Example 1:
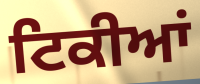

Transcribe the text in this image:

ਟਿਕੀਆਂ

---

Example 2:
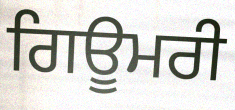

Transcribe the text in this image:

ਗਿਊਮਰੀ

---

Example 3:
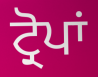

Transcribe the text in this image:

ਟ੍ਰੋਪਾਂ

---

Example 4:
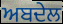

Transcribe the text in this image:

ਅਬਦੇਲ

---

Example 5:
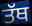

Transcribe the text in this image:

ਤੱਥ